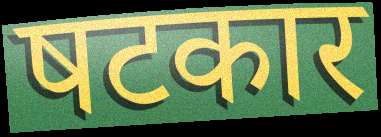
षटकार